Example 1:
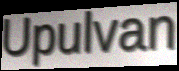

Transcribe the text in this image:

Upulvan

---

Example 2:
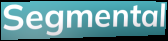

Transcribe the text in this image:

Segmental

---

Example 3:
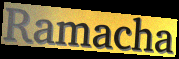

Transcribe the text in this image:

Ramacha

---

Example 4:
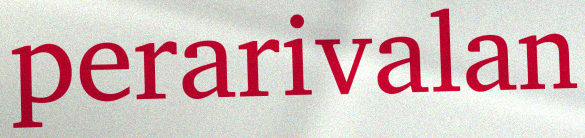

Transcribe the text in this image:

perarivalan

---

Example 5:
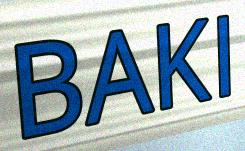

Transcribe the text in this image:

BAKI